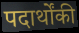
पदार्थोंकी